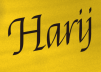
Harij